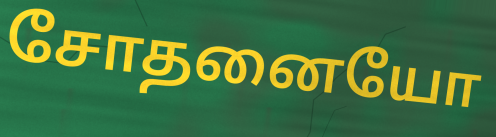
சோதனையோ